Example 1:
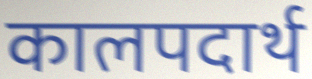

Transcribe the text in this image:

कालपदार्थ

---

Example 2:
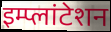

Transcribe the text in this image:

इम्प्लांटेशन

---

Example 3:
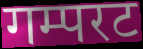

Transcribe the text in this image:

गम्परट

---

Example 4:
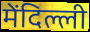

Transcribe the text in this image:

मेंदिल्ली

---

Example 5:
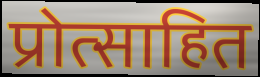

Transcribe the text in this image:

प्रोत्‍साहित